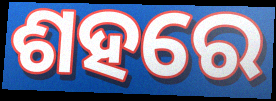
ଶହରେ